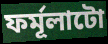
ফৰ্মূলাটো